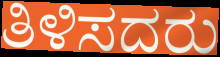
ತಿಳಿಸದರು